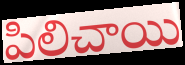
పిలిచాయి